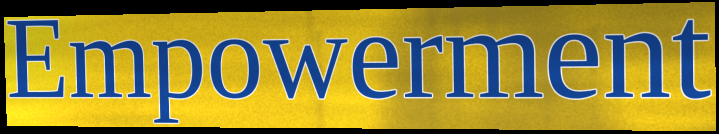
Empowerment